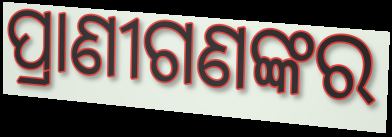
ପ୍ରାଣୀଗଣଙ୍କର